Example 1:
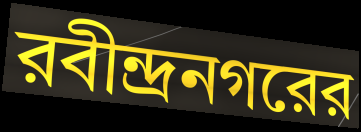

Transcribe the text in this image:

রবীন্দ্রনগরের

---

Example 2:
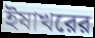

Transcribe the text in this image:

ইষাখরের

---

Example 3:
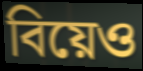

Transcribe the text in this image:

বিয়েও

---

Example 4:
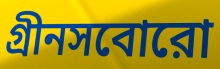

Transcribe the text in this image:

গ্রীনসবোরো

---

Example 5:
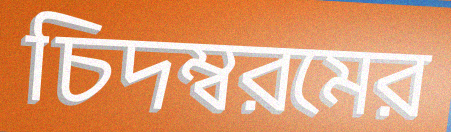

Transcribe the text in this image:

চিদম্বরমের